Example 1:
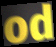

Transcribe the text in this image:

od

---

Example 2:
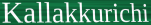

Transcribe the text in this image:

Kallakkurichi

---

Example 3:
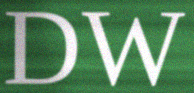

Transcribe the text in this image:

DW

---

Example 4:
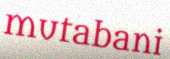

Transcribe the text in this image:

mutabani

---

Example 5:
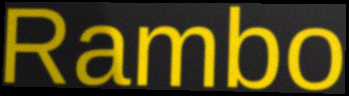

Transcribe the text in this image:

Rambo